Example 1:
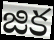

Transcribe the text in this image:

జిక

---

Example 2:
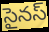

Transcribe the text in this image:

సైనస్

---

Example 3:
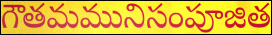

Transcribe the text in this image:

గౌతమమునిసంపూజిత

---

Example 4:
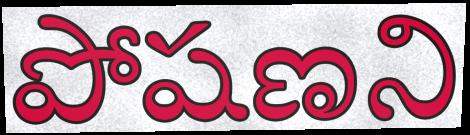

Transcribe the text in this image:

పోషణని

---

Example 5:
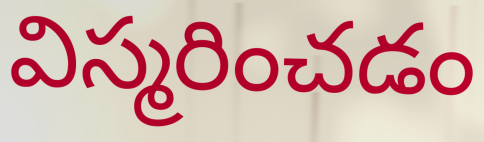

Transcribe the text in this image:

విస్మరించడం